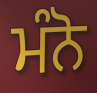
ਮੰਨੋ